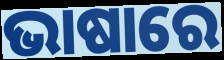
ଭାଷାରେ